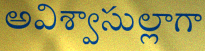
అవిశ్వాసుల్లాగా